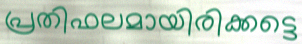
പ്രതിഫലമായിരിക്കട്ടെ